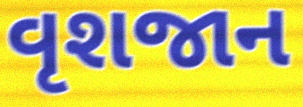
વૃશજાન